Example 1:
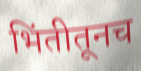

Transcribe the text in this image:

भिंतीतूनच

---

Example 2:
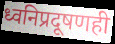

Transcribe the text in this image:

ध्वनिप्रदूषणही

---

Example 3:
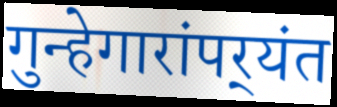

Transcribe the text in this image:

गुन्हेगारांपर्यंत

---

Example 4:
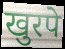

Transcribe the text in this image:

खुरपे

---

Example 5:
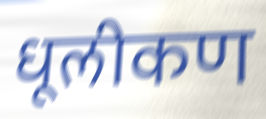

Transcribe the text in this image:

धूलीकण